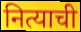
नित्याची